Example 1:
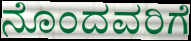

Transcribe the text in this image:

ನೊಂದವರಿಗೆ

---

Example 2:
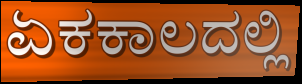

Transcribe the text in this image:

ಏಕಕಾಲದಲ್ಲಿ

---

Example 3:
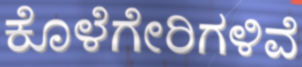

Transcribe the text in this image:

ಕೊಳೆಗೇರಿಗಳಿವೆ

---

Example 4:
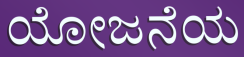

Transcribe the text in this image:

ಯೋಜನೆಯ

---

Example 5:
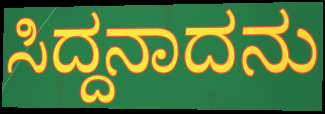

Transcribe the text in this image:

ಸಿದ್ದನಾದನು